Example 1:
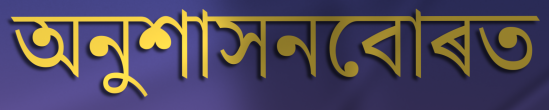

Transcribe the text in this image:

অনুশাসনবোৰত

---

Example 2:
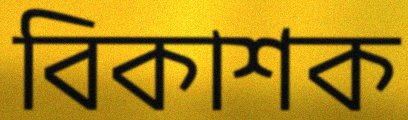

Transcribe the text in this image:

বিকাশক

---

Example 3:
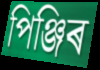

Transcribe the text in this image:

পিঞ্জিৰ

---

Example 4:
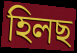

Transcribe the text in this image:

হিলছ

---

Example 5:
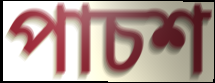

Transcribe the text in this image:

পাচশ